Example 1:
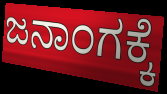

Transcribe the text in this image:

ಜನಾಂಗಕ್ಕೆ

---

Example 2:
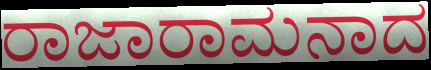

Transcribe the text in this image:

ರಾಜಾರಾಮನಾದ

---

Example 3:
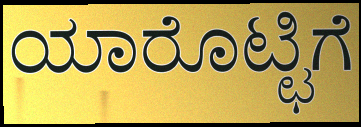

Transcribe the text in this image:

ಯಾರೊಟ್ಟಿಗೆ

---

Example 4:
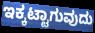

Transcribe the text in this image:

ಇಕ್ಕಟ್ಟಾಗುವುದು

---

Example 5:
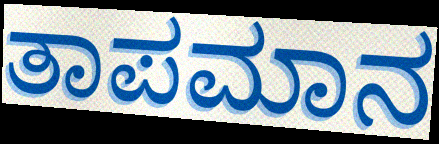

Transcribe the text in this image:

ತಾಪಮಾನ